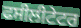
ਫਸੀਲੀਟੇਟਰ